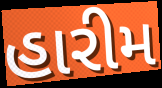
હારીમ